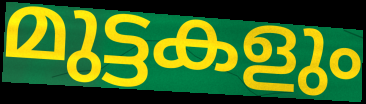
മുട്ടകളും